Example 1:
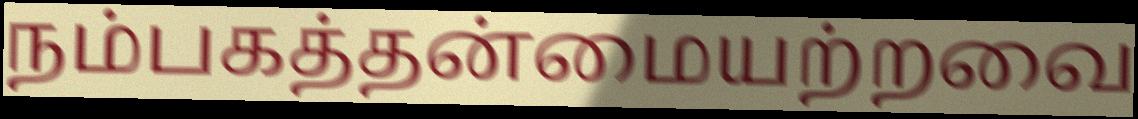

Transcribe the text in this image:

நம்பகத்தன்மையற்றவை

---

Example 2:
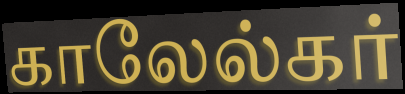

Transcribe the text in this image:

காலேல்கர்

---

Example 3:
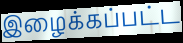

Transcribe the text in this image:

இழைக்கப்பட்ட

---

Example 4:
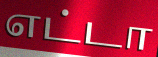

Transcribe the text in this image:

எட்டா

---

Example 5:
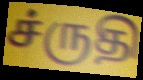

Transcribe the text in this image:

ச்ருதி